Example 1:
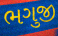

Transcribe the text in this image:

ભગુજી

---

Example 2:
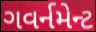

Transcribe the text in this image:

ગવર્નમેન્ટ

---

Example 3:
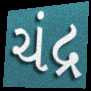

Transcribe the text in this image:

ચંદ્ર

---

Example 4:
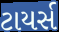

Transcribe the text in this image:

ટાયર્સ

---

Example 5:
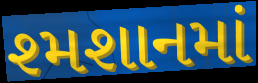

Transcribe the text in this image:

શ્મશાનમાં